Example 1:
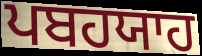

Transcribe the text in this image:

ਪਬਹਯਾਹ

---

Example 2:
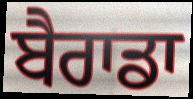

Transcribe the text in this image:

ਬੈਰਾਡਾ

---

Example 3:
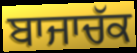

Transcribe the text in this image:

ਬਾਜਾਚੱਕ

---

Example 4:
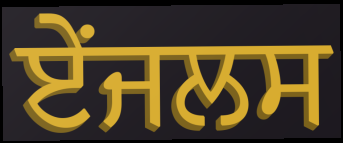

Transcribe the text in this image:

ਏਂਜਲਸ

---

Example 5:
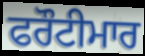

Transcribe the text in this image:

ਫਰੌਟੀਮਾਰ